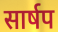
सार्षप